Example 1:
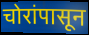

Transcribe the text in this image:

चोरांपासून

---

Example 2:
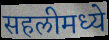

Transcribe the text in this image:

सहलीमध्ये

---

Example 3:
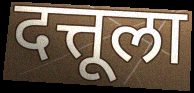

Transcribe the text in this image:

दत्तूला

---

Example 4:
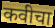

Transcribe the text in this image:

कवीचा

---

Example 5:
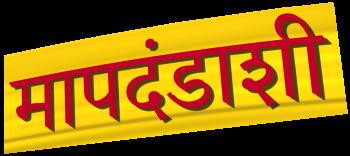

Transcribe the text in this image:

मापदंडाशी